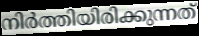
നിർത്തിയിരിക്കുന്നത്